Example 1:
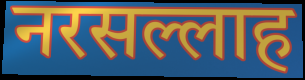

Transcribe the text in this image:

नरसल्लाह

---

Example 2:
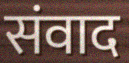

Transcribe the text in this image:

संवाद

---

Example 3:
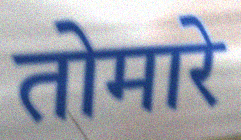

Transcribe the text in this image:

तोमारे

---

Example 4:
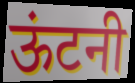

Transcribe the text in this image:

ऊंटनी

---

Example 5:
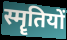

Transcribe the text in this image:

स्मॄतियों